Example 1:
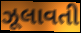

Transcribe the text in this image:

ઝૂલાવતી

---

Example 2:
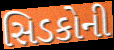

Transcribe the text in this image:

સિડકોની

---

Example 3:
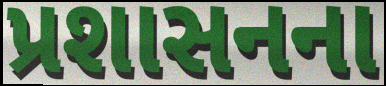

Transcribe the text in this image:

પ્રશાસનના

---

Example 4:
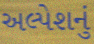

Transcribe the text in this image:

અલ્પેશનું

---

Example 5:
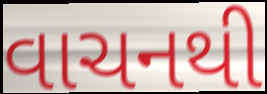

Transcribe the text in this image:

વાચનથી